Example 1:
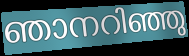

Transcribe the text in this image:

ഞാനറിഞ്ഞു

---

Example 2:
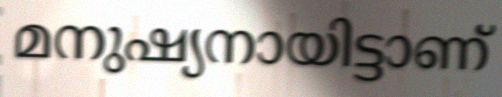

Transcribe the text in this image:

മനുഷ്യനായിട്ടാണ്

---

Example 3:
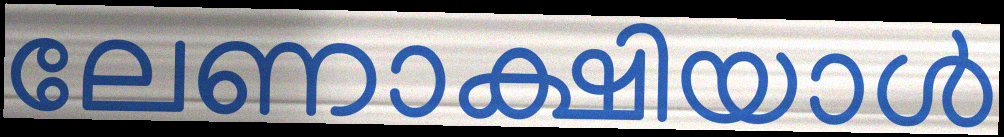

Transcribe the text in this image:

ലേണാക്ഷിയാൾ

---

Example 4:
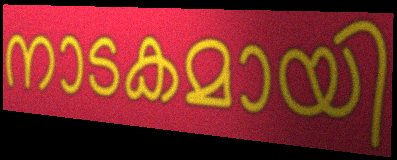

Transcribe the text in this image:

നാടകമായി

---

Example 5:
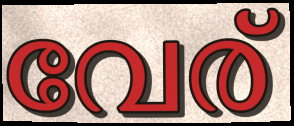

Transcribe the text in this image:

വേര്